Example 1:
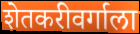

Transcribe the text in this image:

शेतकरीवर्गाला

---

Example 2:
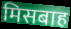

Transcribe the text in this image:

मिसबाह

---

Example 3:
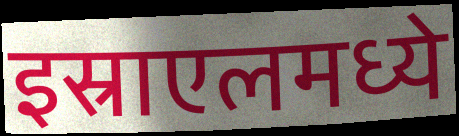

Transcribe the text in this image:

इस्राएलमध्ये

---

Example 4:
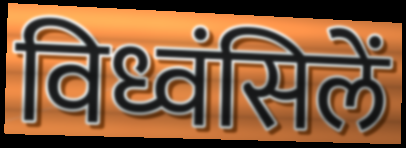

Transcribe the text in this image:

विध्वंसिलें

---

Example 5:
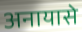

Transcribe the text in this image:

अनायासे